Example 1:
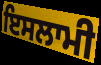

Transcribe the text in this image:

ਇਸਲਾਮੀ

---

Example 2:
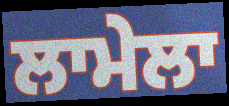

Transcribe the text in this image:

ਲਾਮੇਲਾ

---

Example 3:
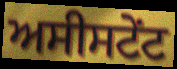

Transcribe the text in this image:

ਅਸੀਸਟੇਂਟ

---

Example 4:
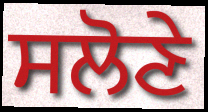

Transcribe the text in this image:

ਸਲੋਣੇ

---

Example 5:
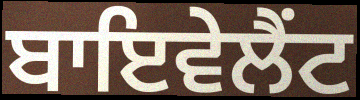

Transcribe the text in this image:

ਬਾਇਵੇਲੈਂਟ